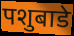
पशुबाडे